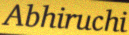
Abhiruchi